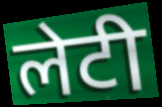
लेटी